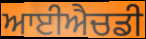
ਆਈਐਚਡੀ